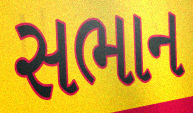
સભાન